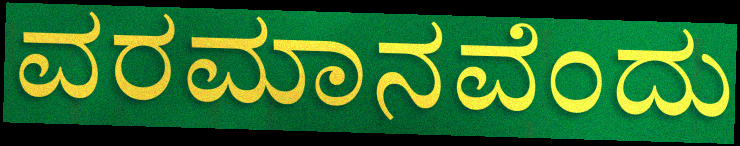
ವರಮಾನವೆಂದು